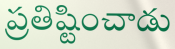
ప్రతిష్టించాడు